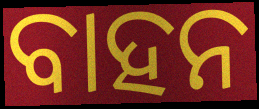
ବାହନ